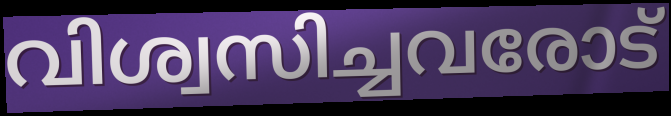
വിശ്വസിച്ചവരോട്